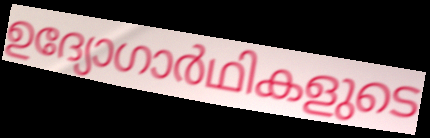
ഉദ്യോഗാർഥികളുടെ